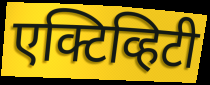
एक्टिव्हिटी